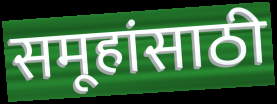
समूहांसाठी